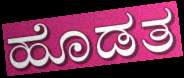
ಹೊಡತ